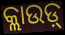
କ୍ଲାଉଡ଼୍